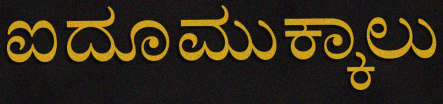
ಐದೂಮುಕ್ಕಾಲು